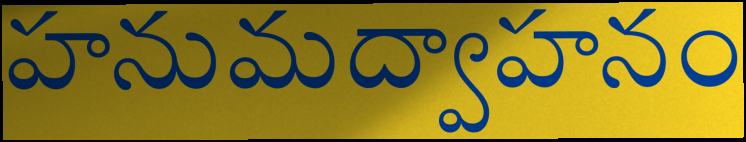
హనుమద్వాహనం